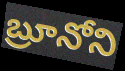
బ్రూనోని